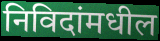
निविदांमधील